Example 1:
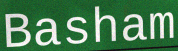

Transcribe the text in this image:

Basham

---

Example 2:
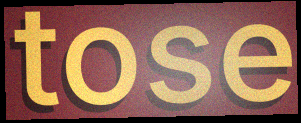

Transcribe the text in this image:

tose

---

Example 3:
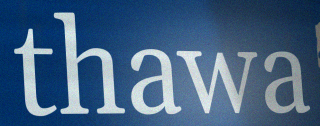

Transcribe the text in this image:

thawa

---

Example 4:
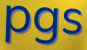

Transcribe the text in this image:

pgs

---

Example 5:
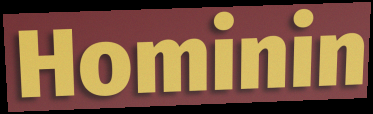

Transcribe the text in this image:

Hominin